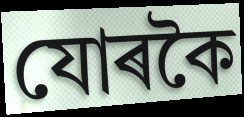
যোৰকৈ